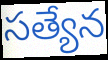
సత్యేన